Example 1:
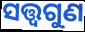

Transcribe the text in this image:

ସତ୍ତ୍ୱଗୁଣ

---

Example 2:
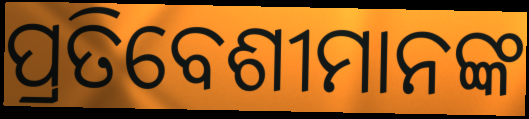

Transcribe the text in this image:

ପ୍ରତିବେଶୀମାନଙ୍କ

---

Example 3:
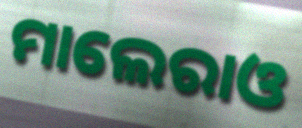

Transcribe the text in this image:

ମାଲେରାଓ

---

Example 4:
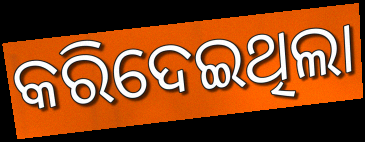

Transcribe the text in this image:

କରିଦେଇଥିଲା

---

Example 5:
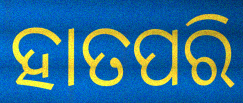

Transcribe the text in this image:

ହାତପରି